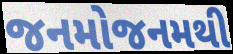
જનમોજનમથી